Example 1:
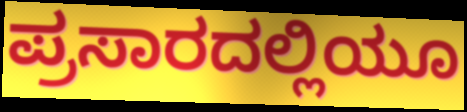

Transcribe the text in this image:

ಪ್ರಸಾರದಲ್ಲಿಯೂ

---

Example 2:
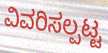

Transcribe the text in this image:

ವಿವರಿಸಲ್ಪಟ್ಟ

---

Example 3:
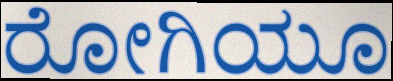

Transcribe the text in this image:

ರೋಗಿಯೂ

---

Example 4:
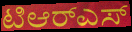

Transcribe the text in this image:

ಟಿಆರ್‌ಎಸ್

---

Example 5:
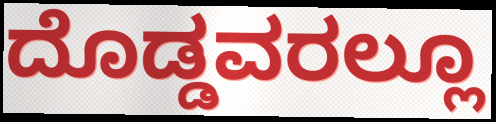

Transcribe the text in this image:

ದೊಡ್ಡವರಲ್ಲೂ